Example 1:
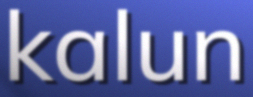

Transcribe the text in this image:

kalun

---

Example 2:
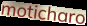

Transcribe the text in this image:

moticharo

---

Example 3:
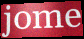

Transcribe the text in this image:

jome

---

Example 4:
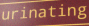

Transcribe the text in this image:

urinating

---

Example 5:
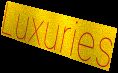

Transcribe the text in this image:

Luxuries